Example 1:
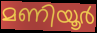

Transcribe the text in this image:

മണിയൂർ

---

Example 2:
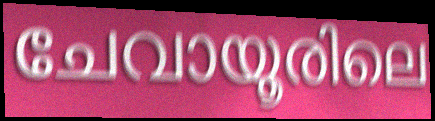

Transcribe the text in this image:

ചേവായൂരിലെ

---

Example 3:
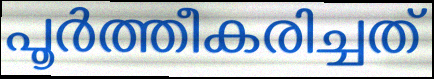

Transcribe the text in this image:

പൂർത്തീകരിച്ചത്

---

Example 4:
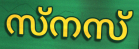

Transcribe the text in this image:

സ്നസ്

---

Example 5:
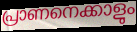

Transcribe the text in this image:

പ്രാണനെക്കാളും